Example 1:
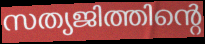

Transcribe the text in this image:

സത്യജിത്തിന്റെ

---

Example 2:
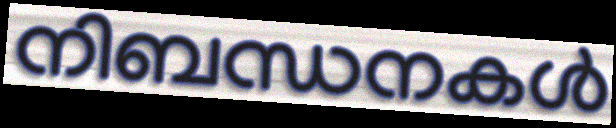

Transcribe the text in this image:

നിബന്ധനകൾ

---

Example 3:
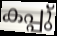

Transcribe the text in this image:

കപ്പു്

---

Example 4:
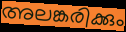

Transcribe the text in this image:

അലങ്കരിക്കും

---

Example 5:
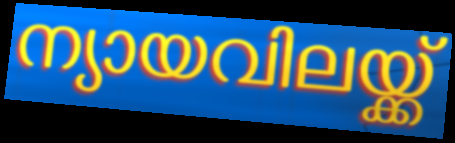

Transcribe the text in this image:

ന്യായവിലയ്ക്ക്